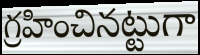
గ్రహించినట్టుగా